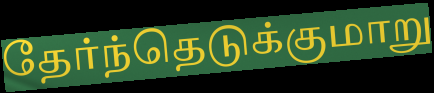
தேர்ந்தெடுக்குமாறு